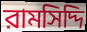
রামসিদ্দি